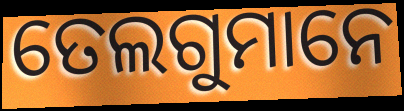
ତେଲଗୁମାନେ